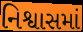
નિશ્વાસમાં